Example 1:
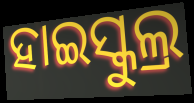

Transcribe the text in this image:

ହାଇସ୍କୁଲ୍ର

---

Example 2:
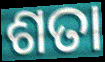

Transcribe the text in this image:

ଶତା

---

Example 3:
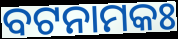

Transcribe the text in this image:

ବଟନାମକଃ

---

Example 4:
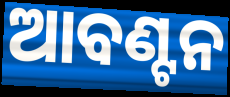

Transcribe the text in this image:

ଆବଣ୍ଟନ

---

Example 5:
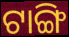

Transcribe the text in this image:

ଟାଙ୍ଗି